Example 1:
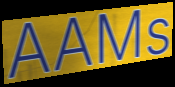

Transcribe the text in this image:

AAMs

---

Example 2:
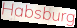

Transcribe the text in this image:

Habsburg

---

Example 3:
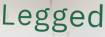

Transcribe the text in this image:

Legged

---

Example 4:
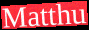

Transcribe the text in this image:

Matthu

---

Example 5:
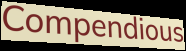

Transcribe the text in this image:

Compendious